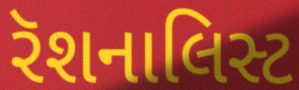
રૅશનાલિસ્ટ